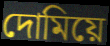
দোমিয়ে